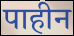
पाहीन